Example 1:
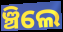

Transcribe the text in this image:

ଞ୍ଚିଲେ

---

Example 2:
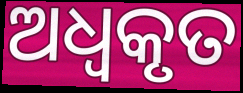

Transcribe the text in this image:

ଅଧ୍ବକୃତ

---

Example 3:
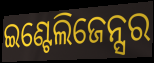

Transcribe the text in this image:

ଇଣ୍ଟେଲିଜେନ୍ସର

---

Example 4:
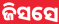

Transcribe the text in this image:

ଜିସସେ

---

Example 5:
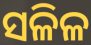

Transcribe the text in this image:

ସଳିଳ